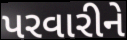
પરવારીને